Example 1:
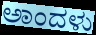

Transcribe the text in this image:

ಅಾಂದಳು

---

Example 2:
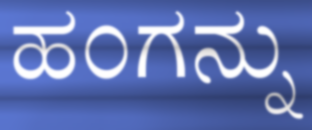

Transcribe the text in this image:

ಹಂಗನ್ನು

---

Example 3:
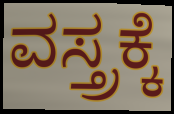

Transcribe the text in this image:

ವಸ್ತ್ರಕ್ಕೆ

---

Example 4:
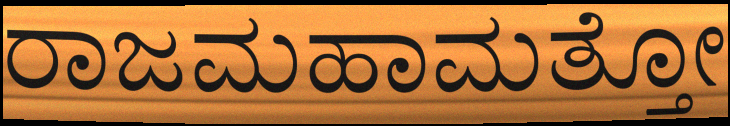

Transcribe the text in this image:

ರಾಜಮಹಾಮತ್ತೋ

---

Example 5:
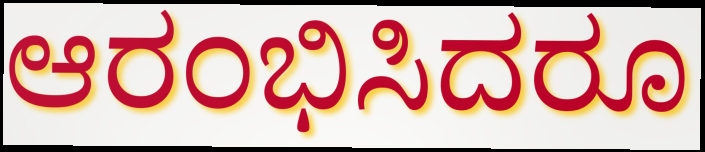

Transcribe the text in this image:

ಆರಂಭಿಸಿದರೂ